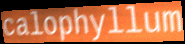
calophyllum